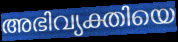
അഭിവ്യക്തിയെ